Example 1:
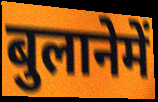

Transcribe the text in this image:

बुलानेमें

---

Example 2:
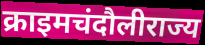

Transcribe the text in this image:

क्राइमचंदौलीराज्य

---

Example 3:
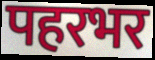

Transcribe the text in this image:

पहरभर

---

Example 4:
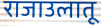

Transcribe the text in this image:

राजाउलातू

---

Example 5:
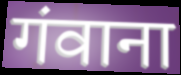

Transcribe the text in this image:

गंवाना